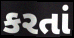
કરતાં